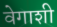
वेगाशी